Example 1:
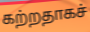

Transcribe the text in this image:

கற்றதாகச்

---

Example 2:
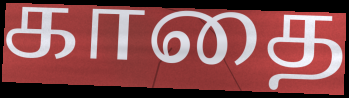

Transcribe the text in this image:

காதை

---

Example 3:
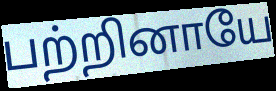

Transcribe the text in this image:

பற்றினாயே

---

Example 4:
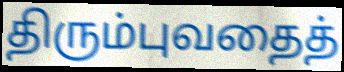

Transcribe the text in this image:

திரும்புவதைத்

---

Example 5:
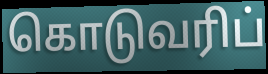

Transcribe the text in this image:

கொடுவரிப்